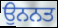
ਉਨਨਤ